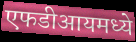
एफडीआयमध्ये